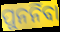
ପୁନର୍ନିବା